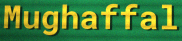
Mughaffal